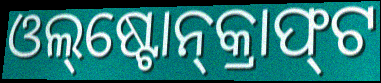
ଓଲ୍‌ଷ୍ଟୋନ୍‌କ୍ରାଫ୍‌ଟ